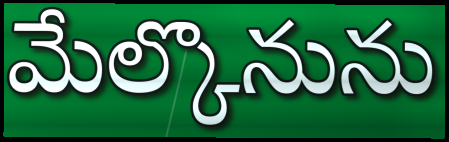
మేల్కొనును